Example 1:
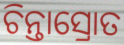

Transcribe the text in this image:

ଚିନ୍ତାସ୍ରୋତ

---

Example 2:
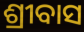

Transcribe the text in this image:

ଶ୍ରୀବାସ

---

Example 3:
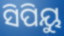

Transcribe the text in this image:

ସିପିୟୁ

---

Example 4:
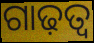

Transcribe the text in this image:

ଗାଢ଼ତ୍ବ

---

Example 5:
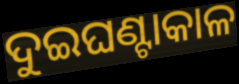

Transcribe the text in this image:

ଦୁଇଘଣ୍ଟାକାଳ